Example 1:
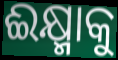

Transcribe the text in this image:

ଈକ୍ଷ୍ମାକୁ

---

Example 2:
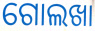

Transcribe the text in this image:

ଗୋଲଖା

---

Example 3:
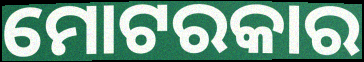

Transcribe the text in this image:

ମୋଟରକାର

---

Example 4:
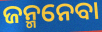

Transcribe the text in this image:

ଜନ୍ମନେବା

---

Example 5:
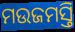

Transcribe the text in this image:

ମଉଜମସ୍ତି